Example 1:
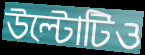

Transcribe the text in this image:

উল্টোটিও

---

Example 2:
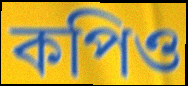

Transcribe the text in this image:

কপিও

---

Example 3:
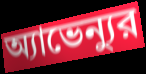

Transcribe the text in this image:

অ্যাভেন্যুর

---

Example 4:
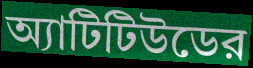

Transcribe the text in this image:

অ্যাটিটিউডের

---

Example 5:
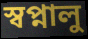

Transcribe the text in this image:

স্বপ্নালু